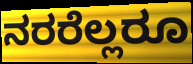
ನರರೆಲ್ಲರೂ